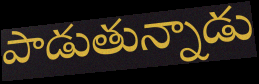
పాడుతున్నాడు